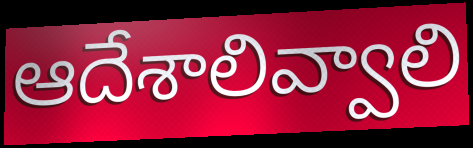
ఆదేశాలివ్వాలి